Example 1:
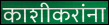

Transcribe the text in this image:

काशीकरांना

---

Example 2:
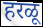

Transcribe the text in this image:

हरळू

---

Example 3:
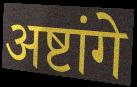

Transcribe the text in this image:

अष्टांगे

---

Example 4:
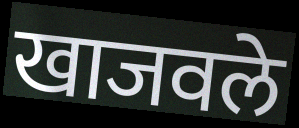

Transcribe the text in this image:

खाजवले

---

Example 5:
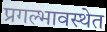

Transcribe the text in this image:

प्रगल्भावस्थेत